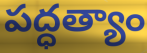
పద్ధత్యాం